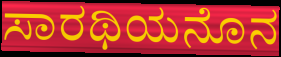
ಸಾರಥಿಯನೊನ